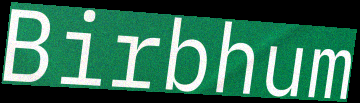
Birbhum